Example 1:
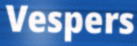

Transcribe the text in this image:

Vespers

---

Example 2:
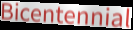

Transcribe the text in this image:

Bicentennial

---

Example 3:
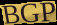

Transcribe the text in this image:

BGP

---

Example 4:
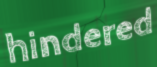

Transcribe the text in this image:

hindered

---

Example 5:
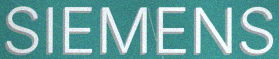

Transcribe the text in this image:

SIEMENS